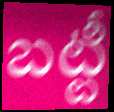
బట్టీ